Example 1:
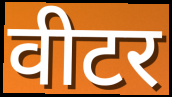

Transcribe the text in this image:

वीटर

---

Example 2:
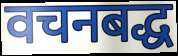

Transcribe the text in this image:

वचनबद्ध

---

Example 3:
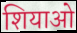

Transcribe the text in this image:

शियाओ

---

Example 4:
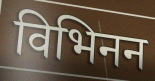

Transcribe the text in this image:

विभिनन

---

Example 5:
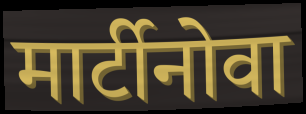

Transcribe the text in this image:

मार्टीनोवा